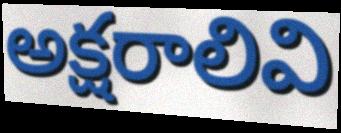
అక్షరాలివి